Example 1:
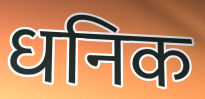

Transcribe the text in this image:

धनिक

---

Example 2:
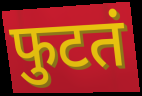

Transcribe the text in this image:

फुटतं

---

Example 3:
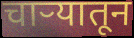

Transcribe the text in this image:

चाऱ्यातून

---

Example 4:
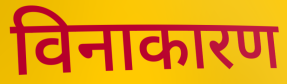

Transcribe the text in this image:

विनाकारण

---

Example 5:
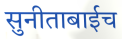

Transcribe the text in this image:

सुनीताबाईच